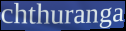
chthuranga